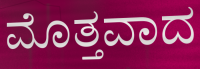
ಮೊತ್ತವಾದ